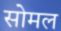
सोमल